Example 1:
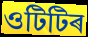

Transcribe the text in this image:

ওটিটিৰ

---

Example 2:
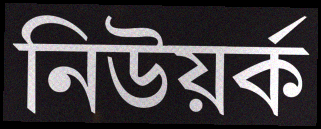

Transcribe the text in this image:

নিউয়ৰ্ক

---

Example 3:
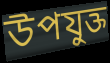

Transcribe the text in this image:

উপযুক্ত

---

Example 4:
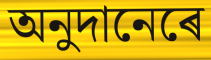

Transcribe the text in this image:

অনুদানেৰে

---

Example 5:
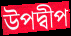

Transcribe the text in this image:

উপদ্বীপ